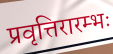
प्रवृत्तिरारम्भः